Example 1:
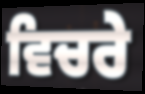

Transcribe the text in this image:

ਵਿਚਰੇ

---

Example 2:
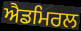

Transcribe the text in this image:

ਐਡਮਿਰਲ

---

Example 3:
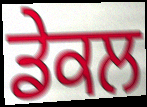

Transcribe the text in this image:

ਡੇਕਲ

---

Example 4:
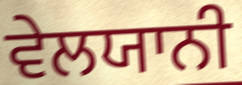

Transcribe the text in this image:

ਵੇਲਯਾਨੀ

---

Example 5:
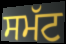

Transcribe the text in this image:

ਸਮੱਟ